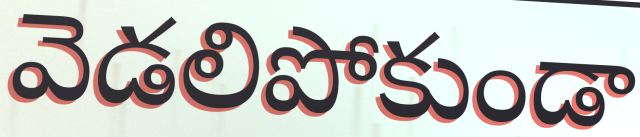
వెడలిపోకుండా